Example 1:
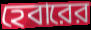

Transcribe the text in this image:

হেবারের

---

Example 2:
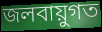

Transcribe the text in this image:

জলবায়ুগত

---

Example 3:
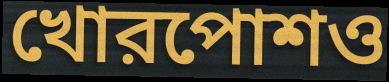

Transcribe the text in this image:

খোরপোশও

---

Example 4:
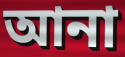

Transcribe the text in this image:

আনা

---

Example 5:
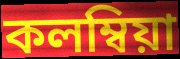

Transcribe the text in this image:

কলম্বিয়া